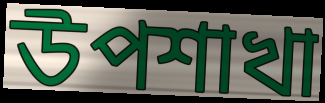
উপশাখা